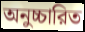
অনুচ্চারিত